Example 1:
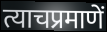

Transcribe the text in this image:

त्याचप्रमाणें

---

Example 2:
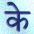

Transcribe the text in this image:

के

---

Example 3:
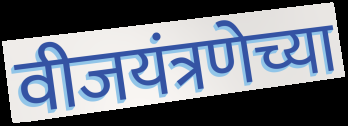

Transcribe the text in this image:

वीजयंत्रणेच्या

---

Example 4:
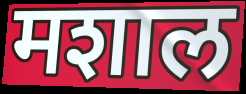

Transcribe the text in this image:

मशाल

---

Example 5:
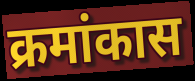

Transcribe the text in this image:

क्रमांकास